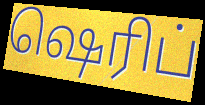
ஷெரிப்